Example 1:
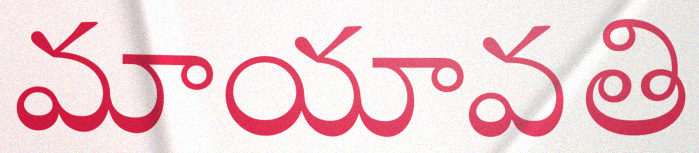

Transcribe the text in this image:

మాయావతి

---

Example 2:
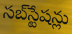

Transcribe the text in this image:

సబ్‌స్టేషన్లు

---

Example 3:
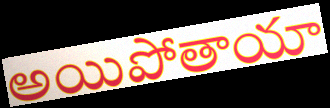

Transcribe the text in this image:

అయిపోతాయా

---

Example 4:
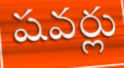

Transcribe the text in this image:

షవర్లు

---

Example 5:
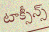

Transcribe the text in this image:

టాక్సీన్స్